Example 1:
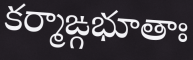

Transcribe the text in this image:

కర్మాఙ్గభూతాః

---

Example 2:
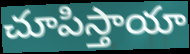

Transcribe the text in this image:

చూపిస్తాయా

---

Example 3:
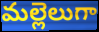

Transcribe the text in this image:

మల్లెలుగా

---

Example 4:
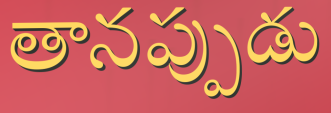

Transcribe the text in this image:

తానప్పుడు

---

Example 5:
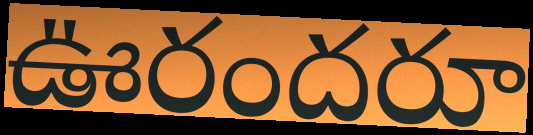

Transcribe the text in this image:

ఊరందరూ